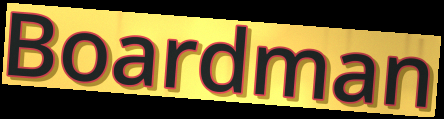
Boardman